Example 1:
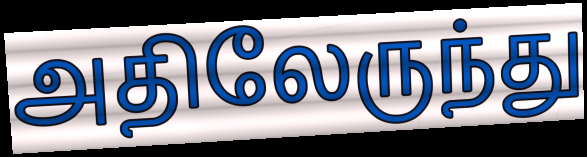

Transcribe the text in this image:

அதிலேருந்து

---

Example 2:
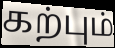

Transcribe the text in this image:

கற்பும்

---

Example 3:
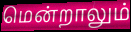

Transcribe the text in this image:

மென்றாலும்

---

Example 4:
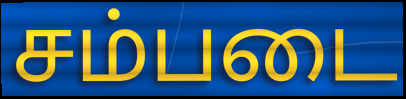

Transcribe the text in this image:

சம்படை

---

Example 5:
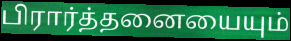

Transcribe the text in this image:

பிரார்த்தனையையும்